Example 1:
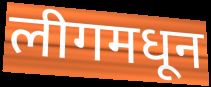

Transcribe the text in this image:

लीगमधून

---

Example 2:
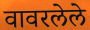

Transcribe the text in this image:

वावरलेले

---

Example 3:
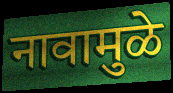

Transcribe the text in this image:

नावामुळे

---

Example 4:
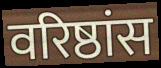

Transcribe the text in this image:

वरिष्ठांस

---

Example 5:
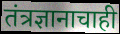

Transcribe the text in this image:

तंत्रज्ञानाचाही